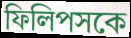
ফিলিপসকে